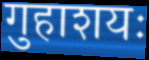
गुहाशयः